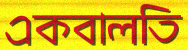
একবালতি